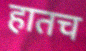
हातच